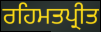
ਰਹਿਮਤਪ੍ਰੀਤ